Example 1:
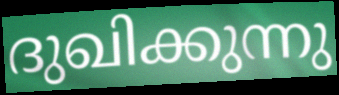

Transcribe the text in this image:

ദുഖിക്കുന്നു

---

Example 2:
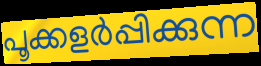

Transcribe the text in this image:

പൂക്കളർപ്പിക്കുന്ന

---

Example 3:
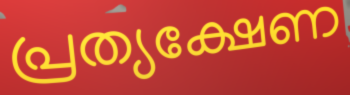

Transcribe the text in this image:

പ്രത്യക്ഷേണ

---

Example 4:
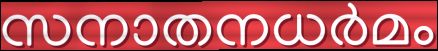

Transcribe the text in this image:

സനാതനധർമം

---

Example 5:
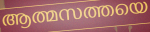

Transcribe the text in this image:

ആത്മസത്തയെ